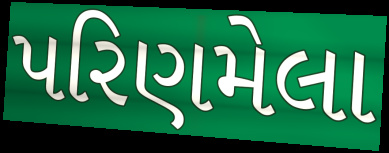
પરિણમેલા